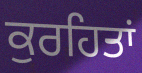
ਕੁਰਹਿਤਾਂ